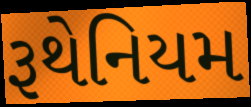
રૂથેનિયમ